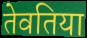
तेवतिया